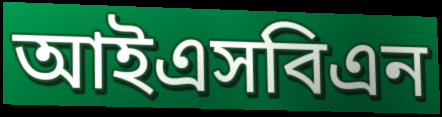
আইএসবিএন